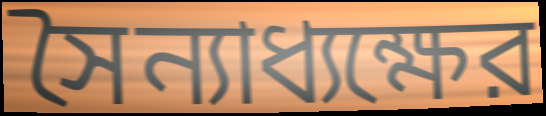
সৈন্যাধ্যক্ষের